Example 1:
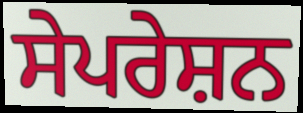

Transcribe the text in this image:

ਸੇਪਰੇਸ਼ਨ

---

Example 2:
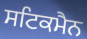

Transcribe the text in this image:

ਸਟਿਕਮੈਨ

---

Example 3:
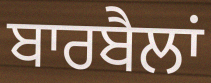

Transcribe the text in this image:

ਬਾਰਬੈਲਾਂ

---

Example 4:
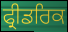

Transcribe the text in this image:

ਫ੍ਰੀਡਰਿਕ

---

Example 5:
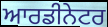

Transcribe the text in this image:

ਆਰਡੀਨੇਟਰ